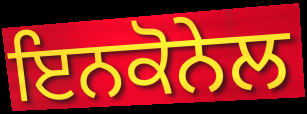
ਇਨਕੋਨੇਲ